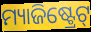
ମ୍ୟାଜିଷ୍ଟ୍ରେଟ୍